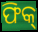
ଫିକ୍